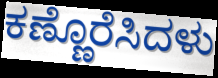
ಕಣ್ಣೊರೆಸಿದಳು